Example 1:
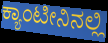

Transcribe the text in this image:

ಕ್ಯಾಂಟೀನಿನಲ್ಲಿ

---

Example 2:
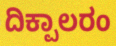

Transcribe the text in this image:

ದಿಕ್ಪಾಲರಂ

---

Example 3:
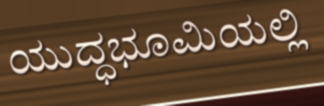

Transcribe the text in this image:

ಯುದ್ಧಭೂಮಿಯಲ್ಲಿ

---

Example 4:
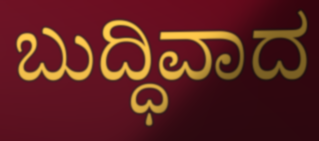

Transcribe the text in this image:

ಬುದ್ಧಿವಾದ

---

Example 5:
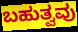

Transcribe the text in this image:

ಬಹುತ್ವವು